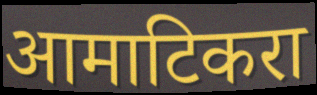
आमाटिकरा